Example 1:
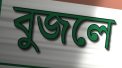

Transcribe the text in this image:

বুজলে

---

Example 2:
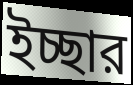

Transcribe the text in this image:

ইচ্ছার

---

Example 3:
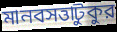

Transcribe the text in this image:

মানবসত্তাটুকুর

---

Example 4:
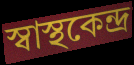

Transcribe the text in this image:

স্বাস্থকেন্দ্র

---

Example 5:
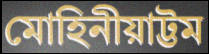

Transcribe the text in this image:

মোহিনীয়াট্টম